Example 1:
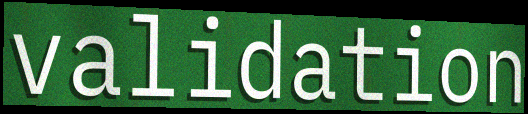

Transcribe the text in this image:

validation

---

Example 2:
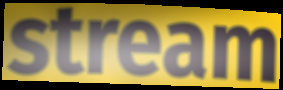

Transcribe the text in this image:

stream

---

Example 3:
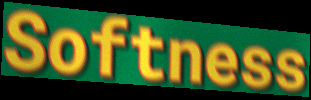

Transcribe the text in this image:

Softness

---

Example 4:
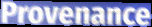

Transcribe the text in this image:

Provenance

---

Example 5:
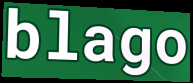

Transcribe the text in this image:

blago